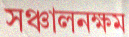
সঞ্চালনক্ষম